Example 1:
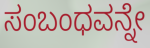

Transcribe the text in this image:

ಸಂಬಂಧವನ್ನೇ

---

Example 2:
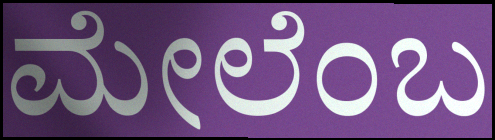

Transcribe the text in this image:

ಮೇಲೆಂಬ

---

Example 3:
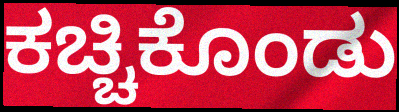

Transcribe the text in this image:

ಕಚ್ಚಿಕೊಂಡು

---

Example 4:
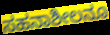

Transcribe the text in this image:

ಸಹನಾಶೀಲನೂ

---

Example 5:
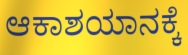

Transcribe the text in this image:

ಆಕಾಶಯಾನಕ್ಕೆ